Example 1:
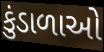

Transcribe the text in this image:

કુંડાળાઓ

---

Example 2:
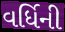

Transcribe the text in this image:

વર્ધિની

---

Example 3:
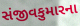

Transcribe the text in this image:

સંજીવકુમારના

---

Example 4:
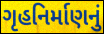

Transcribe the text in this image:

ગૃહનિર્માણનું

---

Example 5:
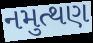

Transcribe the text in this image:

નમુત્થણ